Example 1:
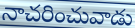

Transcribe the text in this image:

నాచరించువాడు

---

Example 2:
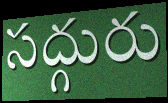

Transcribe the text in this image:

సద్గురు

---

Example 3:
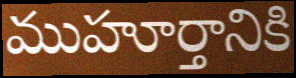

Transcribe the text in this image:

ముహూర్తానికి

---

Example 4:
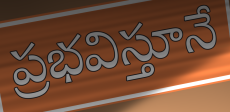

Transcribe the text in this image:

ప్రభవిస్తూనే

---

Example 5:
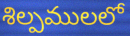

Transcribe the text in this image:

శిల్పములలో